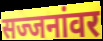
सज्जनांवर